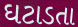
ઘટાડતા